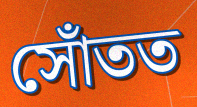
সোঁতত